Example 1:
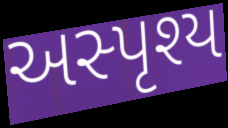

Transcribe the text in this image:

અસ્પૃશ્ય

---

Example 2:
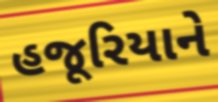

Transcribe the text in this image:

હજૂરિયાને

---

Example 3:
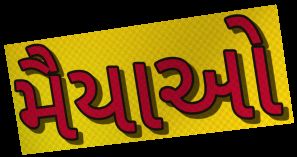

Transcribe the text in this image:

મૈયાઓ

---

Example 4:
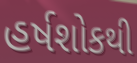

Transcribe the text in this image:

હર્ષશોકથી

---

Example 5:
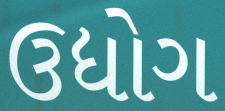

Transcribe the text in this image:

ઉદ્યોગ